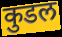
कुडल